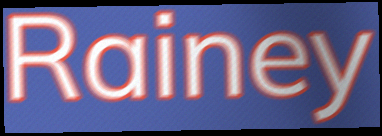
Rainey